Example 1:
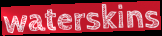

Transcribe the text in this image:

waterskins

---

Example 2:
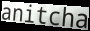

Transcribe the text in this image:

anitcha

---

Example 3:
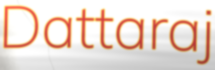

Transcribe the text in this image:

Dattaraj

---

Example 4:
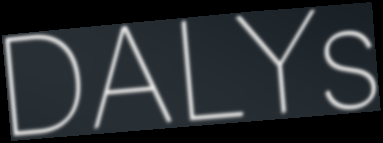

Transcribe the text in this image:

DALYs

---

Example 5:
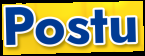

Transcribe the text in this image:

Postu